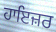
ਹਾਇਜ਼ਰ